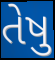
તેષુ